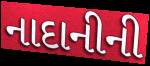
નાદાનીની